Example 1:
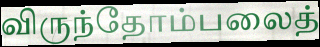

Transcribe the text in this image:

விருந்தோம்பலைத்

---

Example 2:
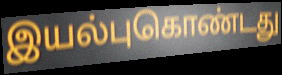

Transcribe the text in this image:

இயல்புகொண்டது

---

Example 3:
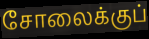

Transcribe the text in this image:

சோலைக்குப்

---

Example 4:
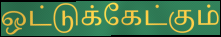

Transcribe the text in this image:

ஒட்டுக்கேட்கும்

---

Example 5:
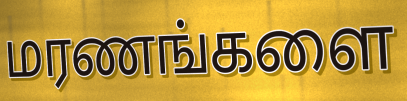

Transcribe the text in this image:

மரணங்களை